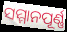
ସମ୍ମାନପୂର୍ଣ୍ଣ